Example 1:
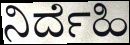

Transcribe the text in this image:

ನಿರ್ದೆಹಿ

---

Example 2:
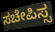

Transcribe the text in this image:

ಸಚೇಪಿಸ್ಸ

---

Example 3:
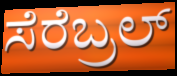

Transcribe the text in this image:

ಸೆರೆಬ್ರಲ್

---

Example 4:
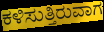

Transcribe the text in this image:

ಕಳಿಸುತ್ತಿರುವಾಗ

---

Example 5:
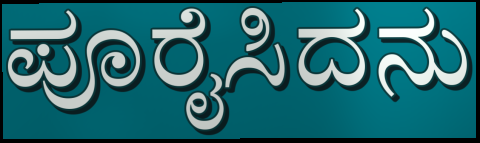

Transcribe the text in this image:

ಪೂರೈಸಿದನು